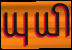
யுயி